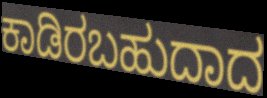
ಕಾಡಿರಬಹುದಾದ